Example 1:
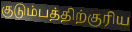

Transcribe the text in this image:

குடும்பத்திற்குரிய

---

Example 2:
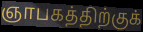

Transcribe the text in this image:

ஞாபகத்திற்குக்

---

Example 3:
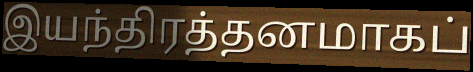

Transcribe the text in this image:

இயந்திரத்தனமாகப்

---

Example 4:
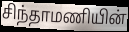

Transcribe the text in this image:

சிந்தாமணியின்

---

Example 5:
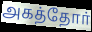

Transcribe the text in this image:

அகத்தோர்